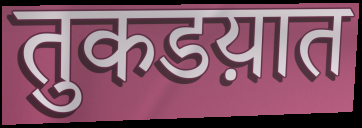
तुकडय़ात